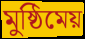
মুষ্ঠিমেয়